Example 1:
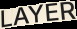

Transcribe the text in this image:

LAYER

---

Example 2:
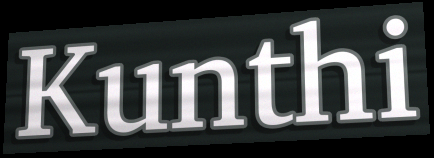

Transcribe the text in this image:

Kunthi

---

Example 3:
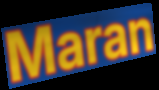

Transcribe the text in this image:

Maran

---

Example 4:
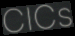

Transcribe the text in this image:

CICs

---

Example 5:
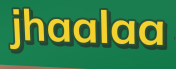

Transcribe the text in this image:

jhaalaa